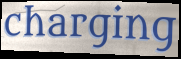
charging